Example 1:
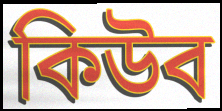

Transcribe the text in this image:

কিউব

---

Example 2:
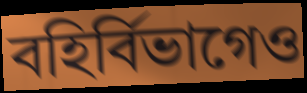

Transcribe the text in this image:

বহির্বিভাগেও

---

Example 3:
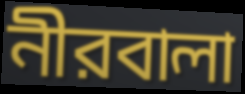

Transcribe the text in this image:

নীরবালা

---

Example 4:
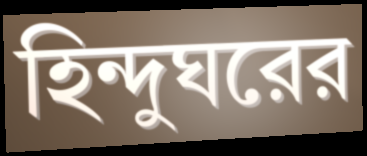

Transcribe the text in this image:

হিন্দুঘরের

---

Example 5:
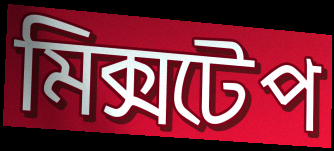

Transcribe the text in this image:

মিক্সটেপ